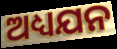
ଅଧ୍ୟଯନ